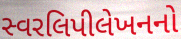
સ્વરલિપીલેખનનો